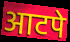
आटपे